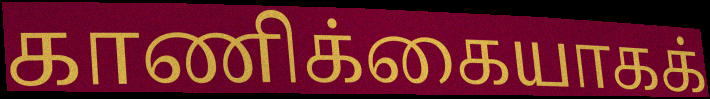
காணிக்கையாகக்